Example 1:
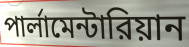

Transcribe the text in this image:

পার্লামেন্টারিয়ান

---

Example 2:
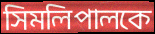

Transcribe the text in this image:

সিমলিপালকে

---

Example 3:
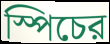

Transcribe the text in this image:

স্পিচের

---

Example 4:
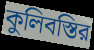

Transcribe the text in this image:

কুলিবস্তির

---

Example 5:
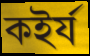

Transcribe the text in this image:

কইর্য